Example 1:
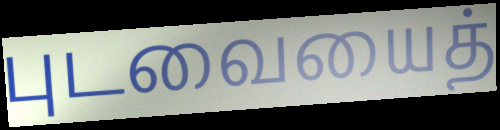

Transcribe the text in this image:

புடவையைத்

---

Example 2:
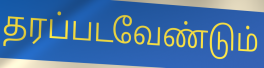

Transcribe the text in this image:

தரப்படவேண்டும்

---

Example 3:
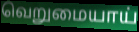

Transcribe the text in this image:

வெறுமையாய்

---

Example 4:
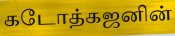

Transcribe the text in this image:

கடோத்கஜனின்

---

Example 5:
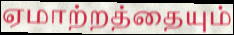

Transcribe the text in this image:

ஏமாற்றத்தையும்